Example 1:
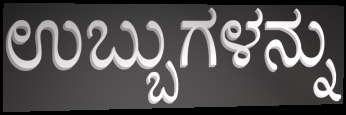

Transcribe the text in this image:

ಉಬ್ಬುಗಳನ್ನು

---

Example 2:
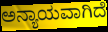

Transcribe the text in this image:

ಅನ್ಯಾಯವಾಗಿದೆ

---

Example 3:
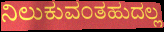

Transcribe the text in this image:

ನಿಲುಕುವಂತಹುದಲ್ಲ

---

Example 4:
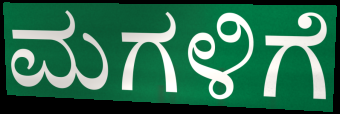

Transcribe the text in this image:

ಮಗಳಿಗೆ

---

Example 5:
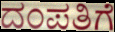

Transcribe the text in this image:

ದಂಪತಿಗೆ